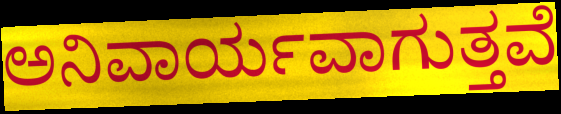
ಅನಿವಾರ್ಯವಾಗುತ್ತವೆ